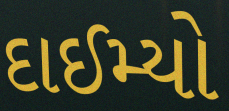
દાઈમ્યો